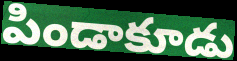
పిండాకూడు